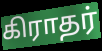
கிராதர்